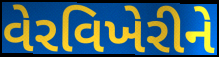
વેરવિખેરીને